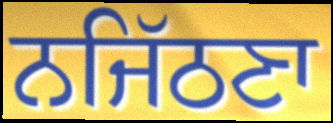
ਨਜਿੱਠਣਾ